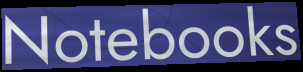
Notebooks